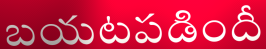
బయటపడిందీ